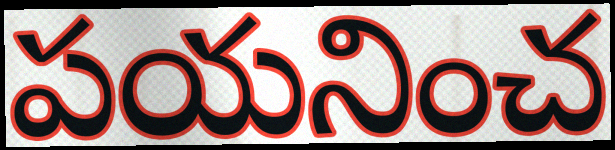
పయనించ